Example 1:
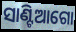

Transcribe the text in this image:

ସାଣ୍ଟିଆଗୋ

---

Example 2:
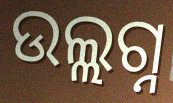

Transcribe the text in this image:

ଉଲ୍ଲଗ୍ନ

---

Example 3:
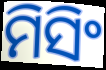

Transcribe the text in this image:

ମିସିଂ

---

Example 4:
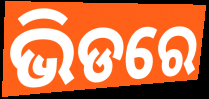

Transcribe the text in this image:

ଭିଡରେ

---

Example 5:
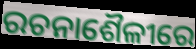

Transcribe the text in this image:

ରଚନାଶୈଳୀରେ